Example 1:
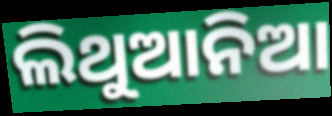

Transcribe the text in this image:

ଲିଥୁଆନିଆ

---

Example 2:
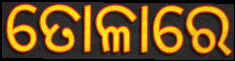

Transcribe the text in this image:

ତୋଳାରେ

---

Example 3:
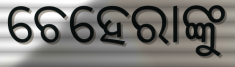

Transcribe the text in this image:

ଚେହେରାଙ୍କୁ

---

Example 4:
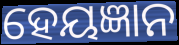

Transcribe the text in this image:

ହେୟଜ୍ଞାନ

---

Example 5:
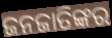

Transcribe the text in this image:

ଜନଜାତିଙ୍କର